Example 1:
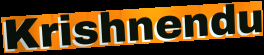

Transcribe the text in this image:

Krishnendu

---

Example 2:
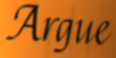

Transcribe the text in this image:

Argue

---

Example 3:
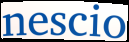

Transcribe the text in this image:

nescio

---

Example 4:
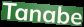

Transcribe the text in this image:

Tanabe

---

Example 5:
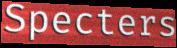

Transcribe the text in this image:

Specters